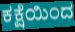
ಕಕ್ಷೆಯಿಂದ